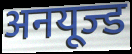
अनयूज्ड